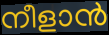
നീളാൻ